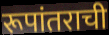
रूपांतराची